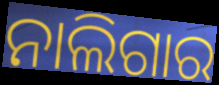
ନାଲିଗାର